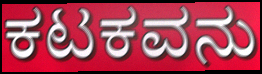
ಕಟಕವನು